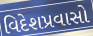
વિદેશપ્રવાસો